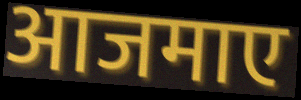
आजमाए